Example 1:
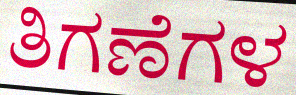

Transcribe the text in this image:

ತಿಗಣೆಗಳ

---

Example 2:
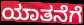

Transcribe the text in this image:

ಯಾತನೆಗೆ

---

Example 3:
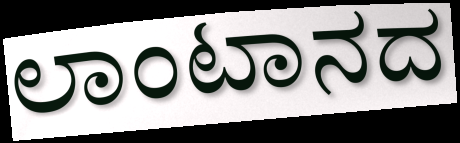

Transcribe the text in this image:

ಲಾಂಟಾನದ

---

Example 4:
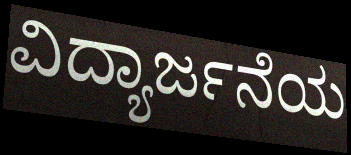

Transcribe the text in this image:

ವಿದ್ಯಾರ್ಜನೆಯ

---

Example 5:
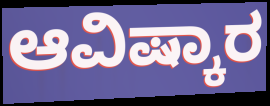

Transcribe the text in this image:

ಆವಿಷ್ಕಾರ